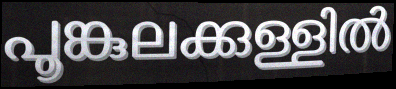
പൂങ്കുലക്കുള്ളിൽ